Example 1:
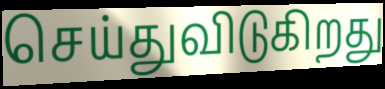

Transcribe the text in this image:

செய்துவிடுகிறது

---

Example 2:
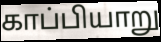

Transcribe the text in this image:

காப்பியாறு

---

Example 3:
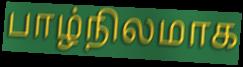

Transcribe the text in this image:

பாழ்நிலமாக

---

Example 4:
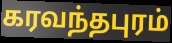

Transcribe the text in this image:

கரவந்தபுரம்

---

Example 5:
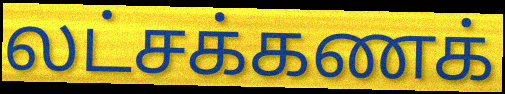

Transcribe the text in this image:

லட்சக்கணக்